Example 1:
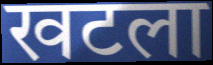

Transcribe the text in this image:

खटला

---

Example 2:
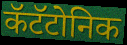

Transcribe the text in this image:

कॅटॅटोनिक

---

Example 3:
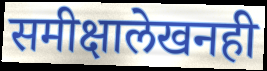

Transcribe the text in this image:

समीक्षालेखनही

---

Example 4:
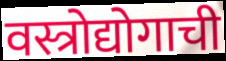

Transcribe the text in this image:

वस्त्रोद्योगाची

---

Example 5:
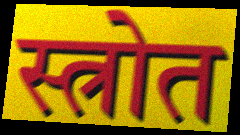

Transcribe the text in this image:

स्त्रोत